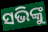
ସଭିଙ୍କୁ